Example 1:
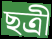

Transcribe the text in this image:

ছত্রী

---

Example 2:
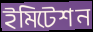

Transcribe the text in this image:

ইমিটেশন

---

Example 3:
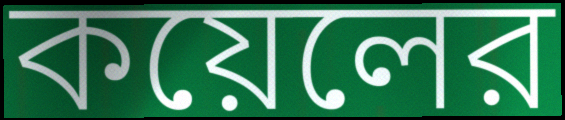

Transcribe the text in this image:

কয়েলের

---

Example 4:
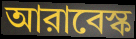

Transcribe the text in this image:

আরাবেস্ক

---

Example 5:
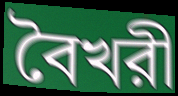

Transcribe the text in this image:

বৈখরী